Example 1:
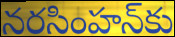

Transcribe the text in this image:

నరసింహన్‌కు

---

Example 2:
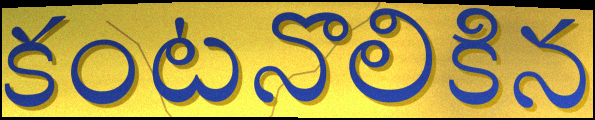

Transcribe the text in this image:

కంటనొలికిన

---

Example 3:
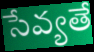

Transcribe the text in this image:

సేవ్యతే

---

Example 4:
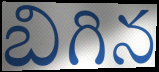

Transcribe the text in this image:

బిగిన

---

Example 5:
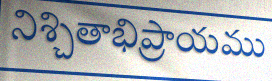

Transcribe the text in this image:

నిశ్చితాభిప్రాయము